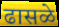
ढासळे